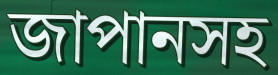
জাপানসহ